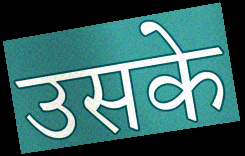
उसके